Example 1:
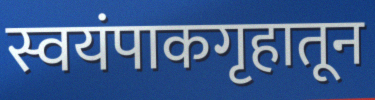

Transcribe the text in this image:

स्वयंपाकगृहातून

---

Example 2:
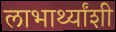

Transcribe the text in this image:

लाभार्थ्यांशी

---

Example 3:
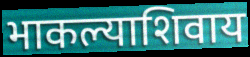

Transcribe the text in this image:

भाकल्याशिवाय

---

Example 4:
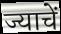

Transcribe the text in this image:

ज्याचें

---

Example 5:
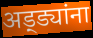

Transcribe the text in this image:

अड्ड्यांना